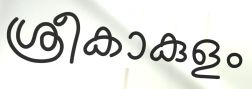
ശ്രീകാകുളം